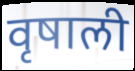
वृषाली